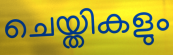
ചെയ്തികളും